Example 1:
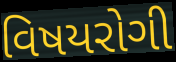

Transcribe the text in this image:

વિષયરોગી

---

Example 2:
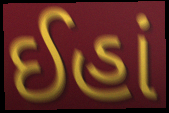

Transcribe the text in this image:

ઈહાં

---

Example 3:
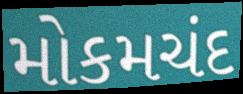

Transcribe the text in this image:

મોકમચંદ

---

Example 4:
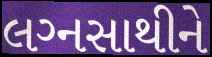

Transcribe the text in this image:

લગ્‍નસાથીને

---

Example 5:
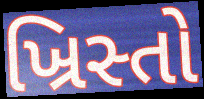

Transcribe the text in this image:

ખ્રિસ્તો